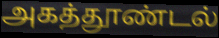
அகத்தூண்டல்